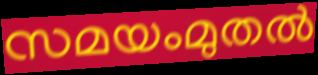
സമയംമുതൽ